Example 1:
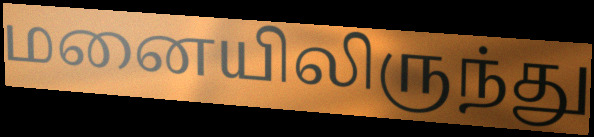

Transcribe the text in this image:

மனையிலிருந்து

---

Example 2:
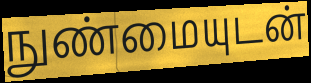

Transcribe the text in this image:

நுண்மையுடன்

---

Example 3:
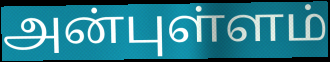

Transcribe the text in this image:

அன்புள்ளம்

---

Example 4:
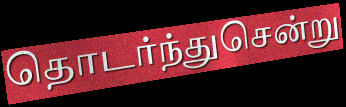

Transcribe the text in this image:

தொடர்ந்துசென்று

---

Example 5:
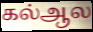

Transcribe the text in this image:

கல்ஆல